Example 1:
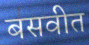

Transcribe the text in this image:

बसवीत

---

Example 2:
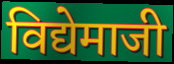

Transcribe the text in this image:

विद्येमाजी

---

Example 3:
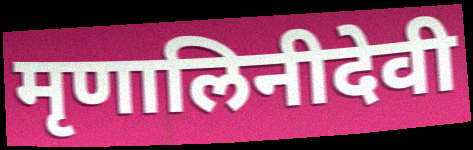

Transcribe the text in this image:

मृणालिनीदेवी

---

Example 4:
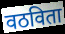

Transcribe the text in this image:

वठविता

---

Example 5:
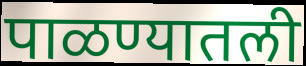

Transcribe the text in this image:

पाळण्यातली